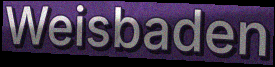
Weisbaden